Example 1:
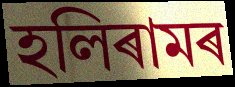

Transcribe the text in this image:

হলিৰামৰ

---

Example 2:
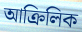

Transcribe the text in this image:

আক্ৰিলিক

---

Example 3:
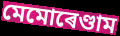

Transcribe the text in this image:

মেমোৰেণ্ডাম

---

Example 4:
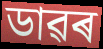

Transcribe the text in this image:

ডাৱৰ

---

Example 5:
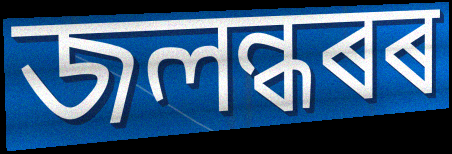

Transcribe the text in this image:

জলন্ধৰৰ